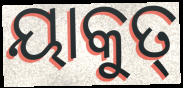
ୟାକୁତ୍